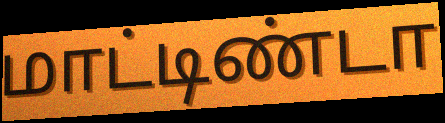
மாட்டிண்டா